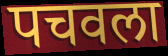
पचवला